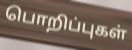
பொறிப்புகள்